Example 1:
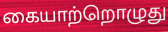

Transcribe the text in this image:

கையாற்றொழுது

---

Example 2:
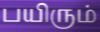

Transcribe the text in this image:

பயிரும்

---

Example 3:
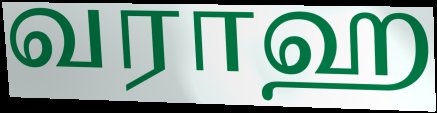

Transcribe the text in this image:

வராஹ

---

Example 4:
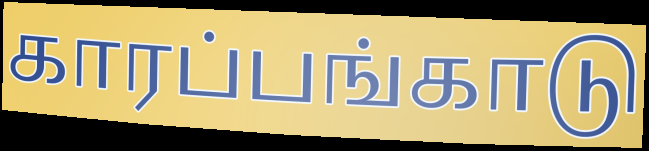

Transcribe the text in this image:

காரப்பங்காடு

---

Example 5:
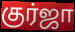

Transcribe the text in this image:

குர்ஜா